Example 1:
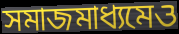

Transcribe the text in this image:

সমাজমাধ্যমেও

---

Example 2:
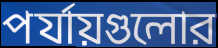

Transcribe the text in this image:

পর্যায়গুলোর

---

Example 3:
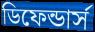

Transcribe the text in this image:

ডিফেন্ডার্স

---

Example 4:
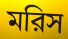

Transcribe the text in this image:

মরিস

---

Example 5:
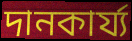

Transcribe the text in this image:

দানকার্য্য